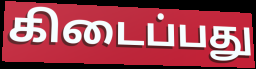
கிடைப்பது